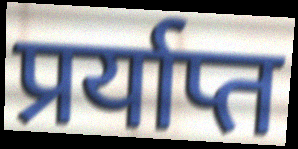
प्रर्याप्त